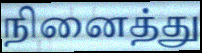
நினைத்து